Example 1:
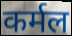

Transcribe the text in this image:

कर्मल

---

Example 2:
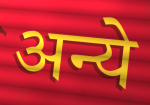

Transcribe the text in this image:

अन्ये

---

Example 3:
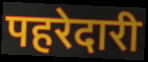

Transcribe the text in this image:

पहरेदारी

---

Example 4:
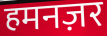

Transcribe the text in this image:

हमनज़र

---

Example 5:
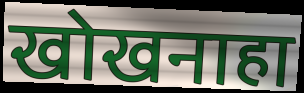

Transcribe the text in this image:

खोखनाहा